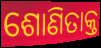
ଶୋଣିତାକ୍ତ